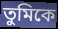
তুমিকে